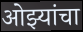
ओझ्यांचा